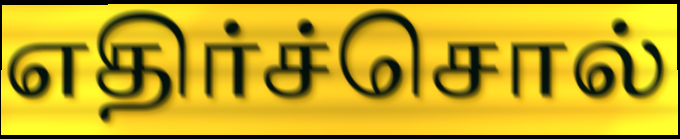
எதிர்ச்சொல்